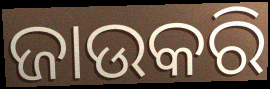
ଜାଉକରି